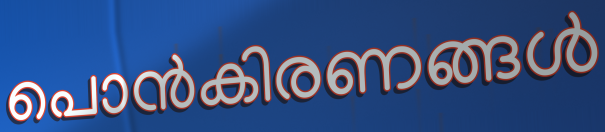
പൊൻകിരണങ്ങൾ